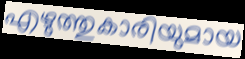
എഴുത്തുകാരിയുമായ